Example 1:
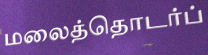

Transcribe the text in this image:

மலைத்தொடர்ப்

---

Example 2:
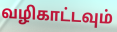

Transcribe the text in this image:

வழிகாட்டவும்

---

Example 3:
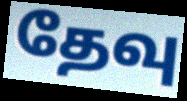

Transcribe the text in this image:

தேவு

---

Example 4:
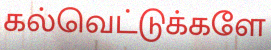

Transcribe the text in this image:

கல்வெட்டுக்களே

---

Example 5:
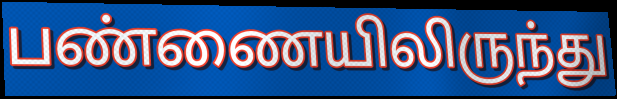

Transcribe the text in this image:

பண்ணையிலிருந்து